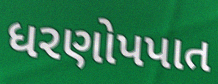
ધરણોપપાત